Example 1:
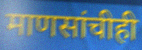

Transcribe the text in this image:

माणसांचीही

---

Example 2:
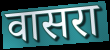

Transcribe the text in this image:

वासरा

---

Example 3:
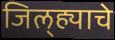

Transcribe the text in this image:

जिल्ह्याचे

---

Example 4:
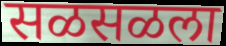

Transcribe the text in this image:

सळसळला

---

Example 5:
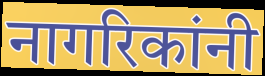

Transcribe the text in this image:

नागरिकांनी